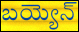
బయ్యెన్